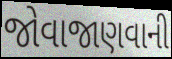
જોવાજાણવાની